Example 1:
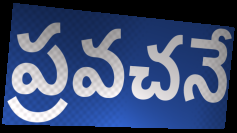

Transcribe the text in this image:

ప్రవచనే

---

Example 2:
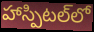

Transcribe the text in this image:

హాస్పిటల్‌లో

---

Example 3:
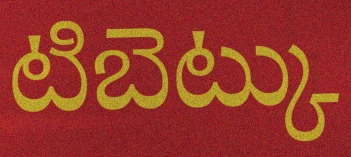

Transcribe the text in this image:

టిబెట్కు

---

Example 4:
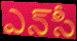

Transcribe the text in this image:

ఎన్‌సీ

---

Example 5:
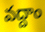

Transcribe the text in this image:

వద్దాం